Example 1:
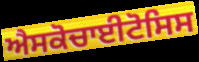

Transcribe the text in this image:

ਐਸਕੋਚਾਈਟੋਸਿਸ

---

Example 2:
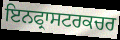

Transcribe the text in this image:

ਇਨਫ੍ਰਾਸਟਰਕਚਰ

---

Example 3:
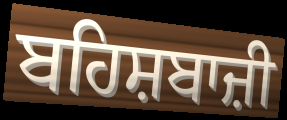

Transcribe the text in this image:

ਬਹਿਸ਼ਬਾਜ਼ੀ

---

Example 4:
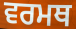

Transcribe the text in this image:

ਵਰਮਥ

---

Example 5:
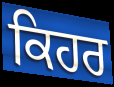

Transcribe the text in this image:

ਕਿਹਰ